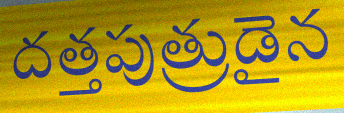
దత్తపుత్రుడైన